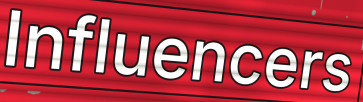
Influencers